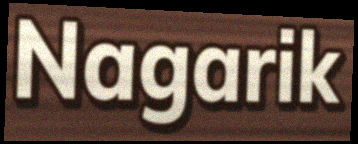
Nagarik